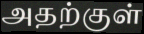
அதற்குள்